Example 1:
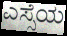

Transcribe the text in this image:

ಎಸ್ಸೆಯ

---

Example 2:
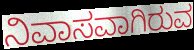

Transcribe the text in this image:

ನಿವಾಸವಾಗಿರುವ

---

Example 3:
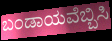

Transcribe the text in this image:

ಬಂಡಾಯವೆಬ್ಬಿಸಿ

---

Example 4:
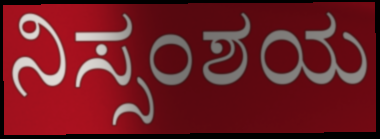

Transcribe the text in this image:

ನಿಸ್ಸಂಶಯ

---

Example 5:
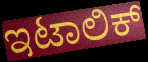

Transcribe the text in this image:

ಇಟಾಲಿಕ್